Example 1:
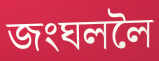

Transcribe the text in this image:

জংঘললৈ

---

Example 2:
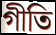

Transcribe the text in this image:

গীতি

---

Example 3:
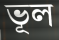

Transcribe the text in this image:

ভূল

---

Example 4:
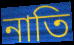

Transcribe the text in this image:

নাতি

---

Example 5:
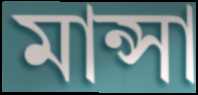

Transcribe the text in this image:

মান্সা